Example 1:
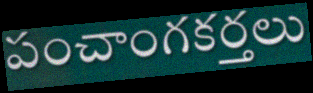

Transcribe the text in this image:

పంచాంగకర్తలు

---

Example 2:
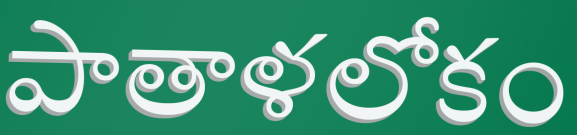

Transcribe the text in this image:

పాతాళలోకం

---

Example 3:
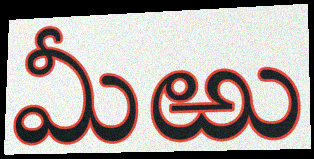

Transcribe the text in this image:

మీఱు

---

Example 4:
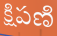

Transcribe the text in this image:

క్షిపణి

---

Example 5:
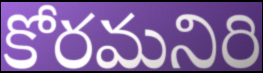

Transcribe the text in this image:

కోరమనిరి